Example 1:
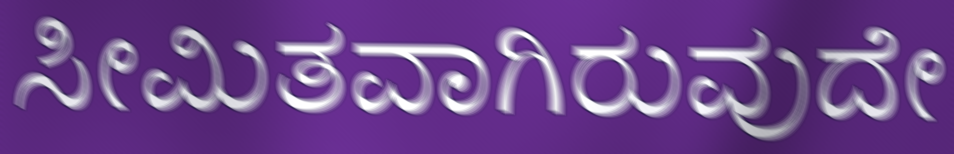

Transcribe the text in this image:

ಸೀಮಿತವಾಗಿರುವುದೇ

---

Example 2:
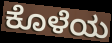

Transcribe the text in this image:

ಕೊಳೆಯ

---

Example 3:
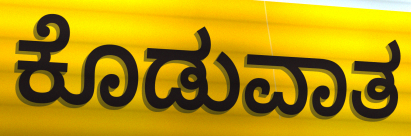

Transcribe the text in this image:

ಕೊಡುವಾತ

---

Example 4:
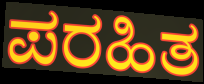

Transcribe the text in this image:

ಪರಹಿತ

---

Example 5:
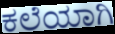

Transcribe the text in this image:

ಕಲೆಯಾಗಿ